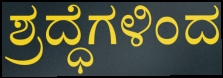
ಶ್ರದ್ಧೆಗಳಿಂದ